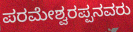
ಪರಮೇಶ್ವರಪ್ಪನವರು